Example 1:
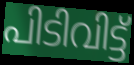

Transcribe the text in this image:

പിടിവിട്ട്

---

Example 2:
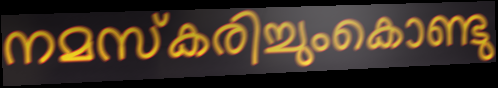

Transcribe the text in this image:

നമസ്കരിച്ചുംകൊണ്ടു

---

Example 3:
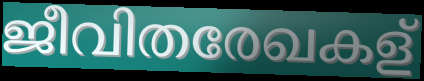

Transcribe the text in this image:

ജീവിതരേഖകള്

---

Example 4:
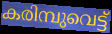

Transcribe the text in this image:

കരിമ്പുവെട്ട്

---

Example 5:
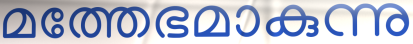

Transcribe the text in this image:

മത്തേഭമാകുന്നു